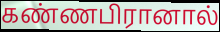
கண்ணபிரானால்